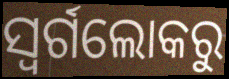
ସ୍ଵର୍ଗଲୋକରୁ